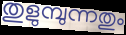
തുളുമ്പുന്നതും